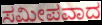
ಸಮೀಪವಾದ